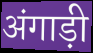
अंगाड़ी